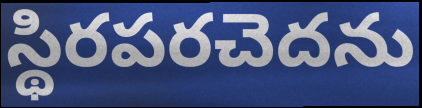
స్థిరపరచెదను